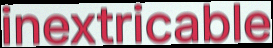
inextricable